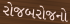
રોજબરોજનો